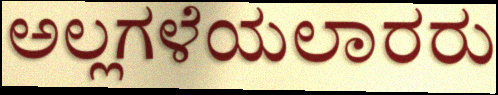
ಅಲ್ಲಗಳೆಯಲಾರರು